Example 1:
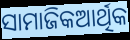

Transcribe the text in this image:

ସାମାଜିକଆର୍ଥିକ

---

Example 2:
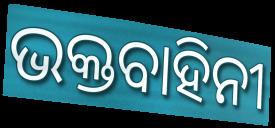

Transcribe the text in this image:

ଭକ୍ତବାହିନୀ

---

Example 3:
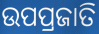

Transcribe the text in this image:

ଉପପ୍ରଜାତି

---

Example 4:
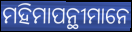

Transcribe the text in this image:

ମହିମାପନ୍ଥୀମାନେ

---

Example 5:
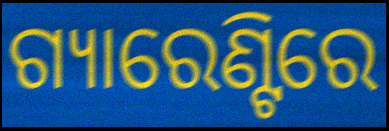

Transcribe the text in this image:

ଗ୍ୟାରେଣ୍ଟିରେ